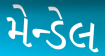
મેન્ડેલ